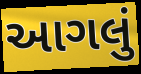
આગલું